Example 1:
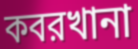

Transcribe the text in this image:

কবরখানা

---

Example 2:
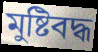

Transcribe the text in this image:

মুষ্টিবদ্ধ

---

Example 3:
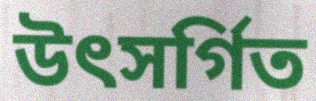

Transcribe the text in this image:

উৎসর্গিত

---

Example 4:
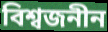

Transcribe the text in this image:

বিশ্বজনীন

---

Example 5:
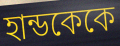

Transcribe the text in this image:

হান্ডকেকে